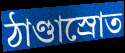
ঠাণ্ডাস্রোত